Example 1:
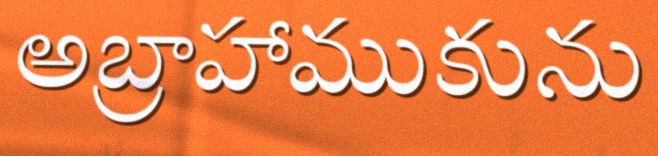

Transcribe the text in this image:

అబ్రాహాముకును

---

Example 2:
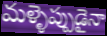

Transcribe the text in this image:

మళ్ళెప్పుడైనా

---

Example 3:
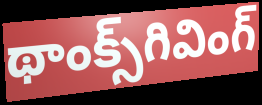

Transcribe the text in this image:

థాంక్స్‌గివింగ్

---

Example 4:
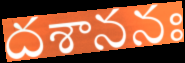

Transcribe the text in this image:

దశాననః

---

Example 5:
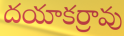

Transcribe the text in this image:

దయాకర్రావు